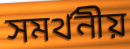
সমর্থনীয়